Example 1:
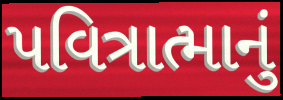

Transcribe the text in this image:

પવિત્રાત્માનું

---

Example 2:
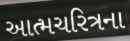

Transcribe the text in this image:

આત્મચરિત્રના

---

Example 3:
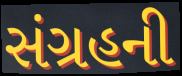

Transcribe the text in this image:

સંગ્રહની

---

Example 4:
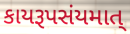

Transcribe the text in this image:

કાયરૂપસંયમાત્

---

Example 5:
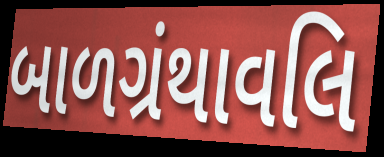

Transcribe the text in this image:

બાળગ્રંથાવલિ